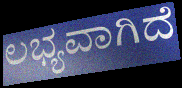
ಲಭ್ಯವಾಗಿದೆ